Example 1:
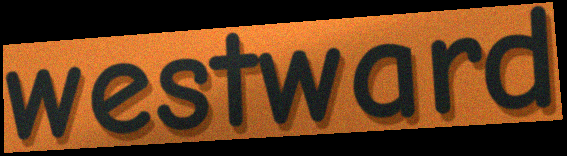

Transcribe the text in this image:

westward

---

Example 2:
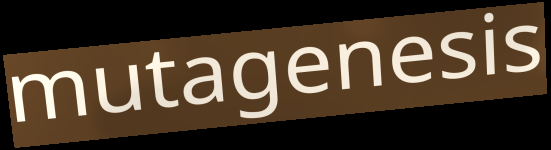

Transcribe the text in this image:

mutagenesis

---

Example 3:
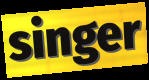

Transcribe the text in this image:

singer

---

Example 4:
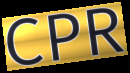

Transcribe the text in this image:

CPR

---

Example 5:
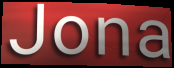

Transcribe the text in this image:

Jona